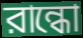
রান্ধো